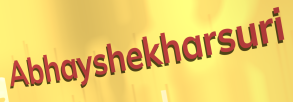
Abhayshekharsuri